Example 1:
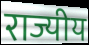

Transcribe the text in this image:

राज्‍यीय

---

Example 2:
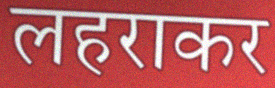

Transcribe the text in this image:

लहराकर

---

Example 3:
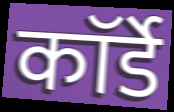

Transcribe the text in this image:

कॉर्डे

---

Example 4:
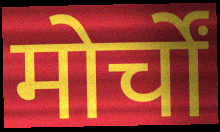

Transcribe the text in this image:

मोर्चों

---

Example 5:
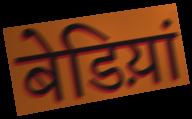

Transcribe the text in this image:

बेडिय़ां